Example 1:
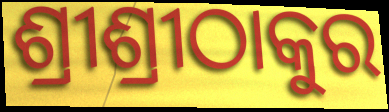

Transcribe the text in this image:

ଶ୍ରୀଶ୍ରୀଠାକୁର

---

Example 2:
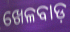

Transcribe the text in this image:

ଖେଳବାଡ଼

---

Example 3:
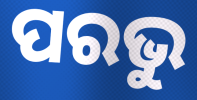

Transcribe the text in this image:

ପରଭୁ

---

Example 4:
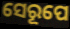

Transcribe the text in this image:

ସେରୂପେ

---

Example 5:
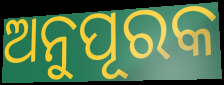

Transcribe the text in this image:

ଅନୁପୂରକ